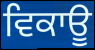
ਵਿਕਾਊ